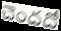
చెందదో